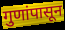
गुणांपासून